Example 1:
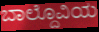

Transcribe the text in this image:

ಬಾಲ್ದೊವಿಯ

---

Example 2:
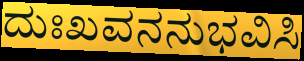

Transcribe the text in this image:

ದುಃಖವನನುಭವಿಸಿ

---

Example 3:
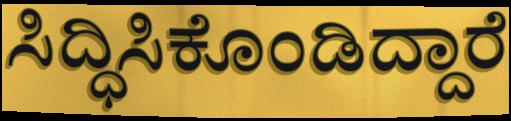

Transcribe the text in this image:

ಸಿದ್ಧಿಸಿಕೊಂಡಿದ್ದಾರೆ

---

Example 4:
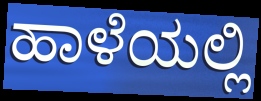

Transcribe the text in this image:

ಹಾಳೆಯಲ್ಲಿ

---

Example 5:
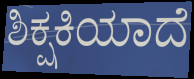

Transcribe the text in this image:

ಶಿಕ್ಷಕಿಯಾದೆ